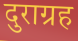
दुराग्रह